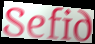
Sefid